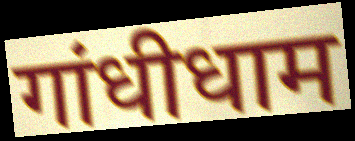
गांधीधाम